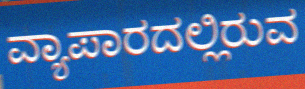
ವ್ಯಾಪಾರದಲ್ಲಿರುವ